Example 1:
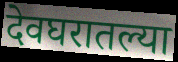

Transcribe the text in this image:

देवघरातल्या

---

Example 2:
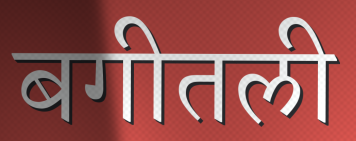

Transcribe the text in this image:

बगीतली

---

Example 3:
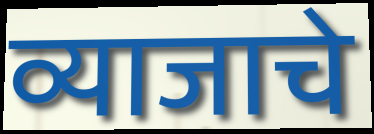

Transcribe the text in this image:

व्याजाचे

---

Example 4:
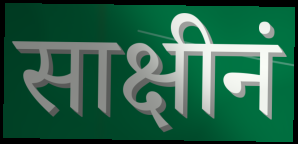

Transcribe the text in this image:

साक्षीनं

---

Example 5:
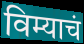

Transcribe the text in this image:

विम्याचं